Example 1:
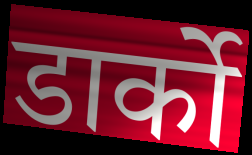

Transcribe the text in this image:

डार्को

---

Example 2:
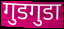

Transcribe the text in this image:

गुडगुडा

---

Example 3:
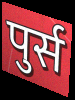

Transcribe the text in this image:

पुर्स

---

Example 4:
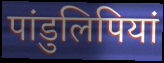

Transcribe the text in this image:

पांडुलिपियां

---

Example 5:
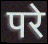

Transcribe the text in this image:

परे